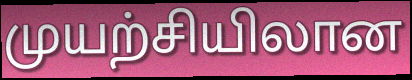
முயற்சியிலான